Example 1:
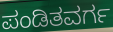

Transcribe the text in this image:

ಪಂಡಿತವರ್ಗ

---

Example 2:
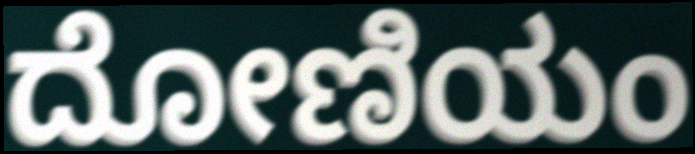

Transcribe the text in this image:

ದೋಣಿಯಂ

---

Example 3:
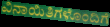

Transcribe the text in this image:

ವಿನಾಯಿತಿಗಳೊಂದಿಗೆ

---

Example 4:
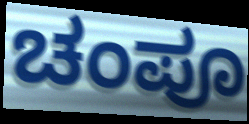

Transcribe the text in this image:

ಚಂಪೂ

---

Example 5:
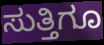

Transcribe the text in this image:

ಸುತ್ತಿಗೂ